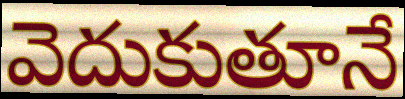
వెదుకుతూనే